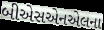
બીએસએનએલના